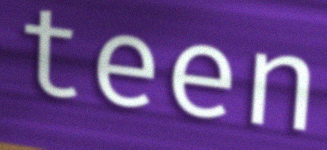
teen